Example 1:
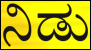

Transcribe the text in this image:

ನಿಡು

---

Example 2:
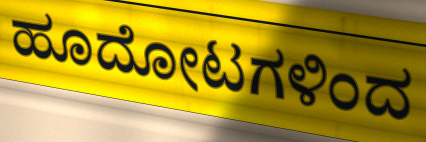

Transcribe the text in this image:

ಹೂದೋಟಗಳಿಂದ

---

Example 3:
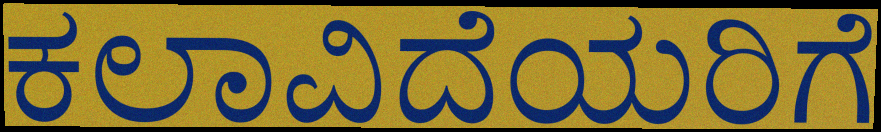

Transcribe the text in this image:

ಕಲಾವಿದೆಯರಿಗೆ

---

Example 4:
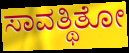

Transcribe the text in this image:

ಸಾವತ್ಥಿತೋ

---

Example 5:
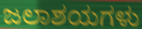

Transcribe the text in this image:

ಜಲಾಶಯಗಳು